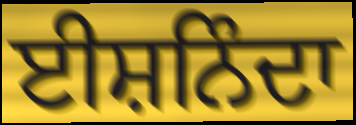
ਈਸ਼ਨਿੰਦਾ